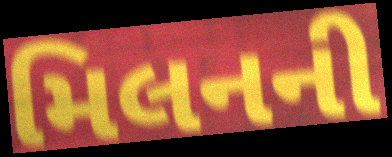
મિલનની